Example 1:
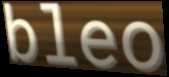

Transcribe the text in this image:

bleo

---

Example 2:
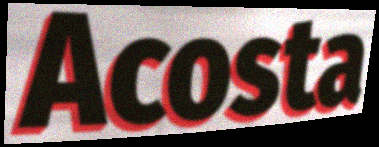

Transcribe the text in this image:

Acosta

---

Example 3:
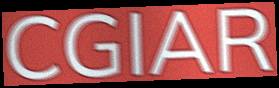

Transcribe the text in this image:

CGIAR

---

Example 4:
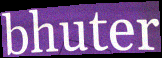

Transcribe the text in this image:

bhuter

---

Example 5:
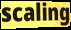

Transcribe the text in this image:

scaling